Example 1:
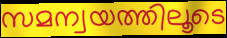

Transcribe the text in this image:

സമന്വയത്തിലൂടെ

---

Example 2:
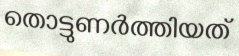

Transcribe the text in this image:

തൊട്ടുണർത്തിയത്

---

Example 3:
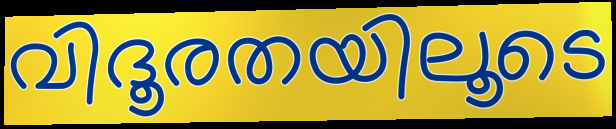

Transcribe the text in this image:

വിദൂരതയിലൂടെ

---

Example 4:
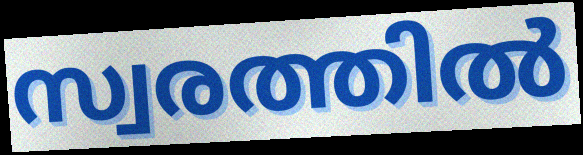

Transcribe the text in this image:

സ്വരത്തിൽ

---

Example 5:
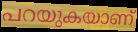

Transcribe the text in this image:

പറയുകയാണ്